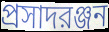
প্রসাদরঞ্জন